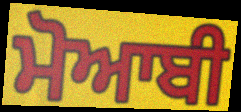
ਮੋਆਬੀ